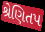
શ્રેણિતપ